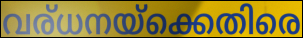
വര്ധനയ്ക്കെതിരെ